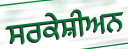
ਸਰਕੇਸ਼ੀਅਨ